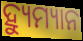
ହ୍ୟୁମ୍ୟାନ